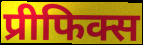
प्रीफिक्स